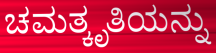
ಚಮತ್ಕೃತಿಯನ್ನು